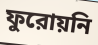
ফুরোয়নি